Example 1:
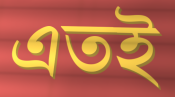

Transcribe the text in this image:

এতই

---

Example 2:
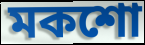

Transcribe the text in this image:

মকশো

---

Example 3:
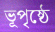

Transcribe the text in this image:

ভূপৃষ্ঠে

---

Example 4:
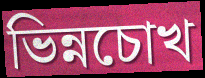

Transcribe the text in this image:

ভিন্নচোখ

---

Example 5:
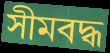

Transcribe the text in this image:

সীমবদ্ধ